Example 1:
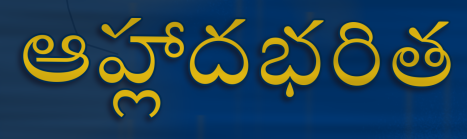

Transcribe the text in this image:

ఆహ్లాదభరిత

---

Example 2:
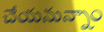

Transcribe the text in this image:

చేయనున్నాం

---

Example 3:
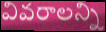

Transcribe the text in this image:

వివరాలన్ని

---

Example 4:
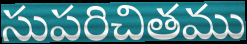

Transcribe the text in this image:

సుపరిచితము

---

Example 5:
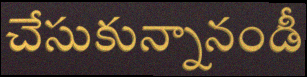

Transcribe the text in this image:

చేసుకున్నానండీ